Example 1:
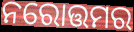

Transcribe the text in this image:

ନରୋତ୍ତମର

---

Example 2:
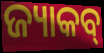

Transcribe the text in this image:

ଜ୍ୟାକବ୍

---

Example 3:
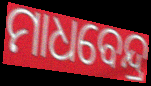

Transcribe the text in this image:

ମାଧବେନ୍ଦ୍ର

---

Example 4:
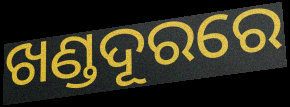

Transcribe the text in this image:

ଖଣ୍ଡଦୂରରେ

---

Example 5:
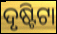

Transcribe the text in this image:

ଦୃଷ୍ଟିଟା